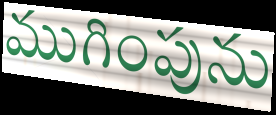
ముగింపును